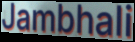
Jambhali